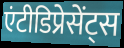
एंटीडिप्रेसेंट्स